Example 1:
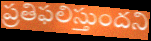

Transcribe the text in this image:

ప్రతిఫలిస్తుందని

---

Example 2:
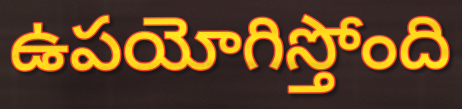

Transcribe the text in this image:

ఉపయోగిస్తోంది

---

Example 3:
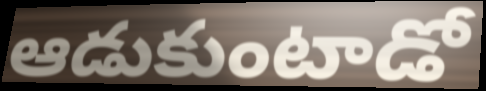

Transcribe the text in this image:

ఆడుకుంటాడో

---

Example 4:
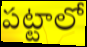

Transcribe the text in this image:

పట్టాలో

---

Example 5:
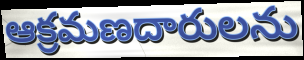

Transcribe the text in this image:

ఆక్రమణదారులను